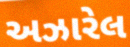
અઝારેલ